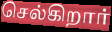
செல்கிறார்